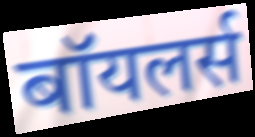
बॉयलर्स